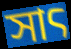
সাৎ